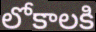
లోకాలకి